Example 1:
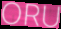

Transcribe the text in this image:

ORU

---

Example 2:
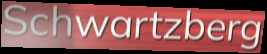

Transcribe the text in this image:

Schwartzberg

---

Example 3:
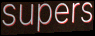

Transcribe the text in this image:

supers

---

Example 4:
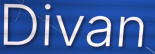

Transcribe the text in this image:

Divan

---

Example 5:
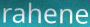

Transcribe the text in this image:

rahene